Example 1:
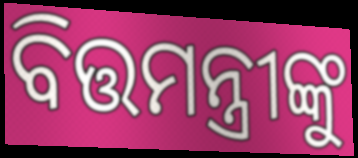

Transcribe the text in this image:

ବିତ୍ତମନ୍ତ୍ରୀଙ୍କୁ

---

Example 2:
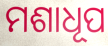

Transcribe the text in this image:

ମଶାଧୂପ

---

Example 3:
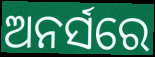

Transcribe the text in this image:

ଅନର୍ସରେ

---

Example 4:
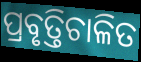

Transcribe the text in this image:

ପ୍ରବୃତ୍ତିଚାଳିତ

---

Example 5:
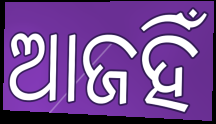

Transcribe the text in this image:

ଆଜହିଁ